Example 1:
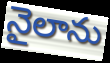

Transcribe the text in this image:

నైలాను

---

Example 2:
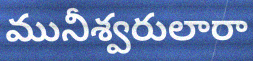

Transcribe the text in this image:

మునీశ్వరులారా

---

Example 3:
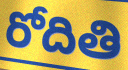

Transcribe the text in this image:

రోదితి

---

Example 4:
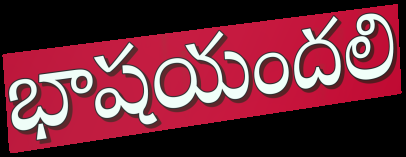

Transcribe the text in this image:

భాషయందలి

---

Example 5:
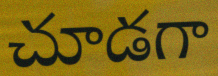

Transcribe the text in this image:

చూడగా